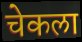
चेकला